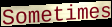
Sometimes